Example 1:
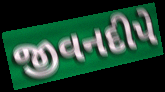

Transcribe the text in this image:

જીવનદીપે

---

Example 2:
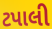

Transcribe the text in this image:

ટપાલી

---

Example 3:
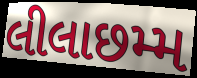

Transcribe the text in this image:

લીલાછમ્મ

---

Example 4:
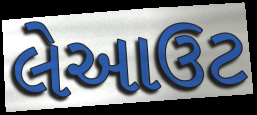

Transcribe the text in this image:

લેઆઉટ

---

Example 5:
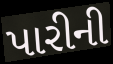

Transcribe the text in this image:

પારીની